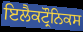
ਇਲੈਕਟ੍ਰੌਨਿਕਸ